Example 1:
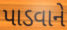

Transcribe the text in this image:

પાડવાને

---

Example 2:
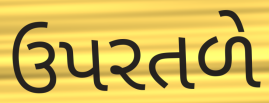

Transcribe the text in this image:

ઉપરતળે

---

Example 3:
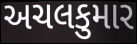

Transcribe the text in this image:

અચલકુમાર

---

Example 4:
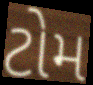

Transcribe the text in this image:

ટોમ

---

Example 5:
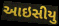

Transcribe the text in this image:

આઇસીયુ